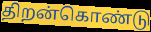
திறன்கொண்டு